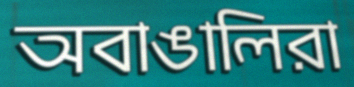
অবাঙালিরা